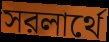
সরলার্থে